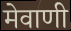
मेवाणी